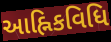
આહ્નિકવિધિ